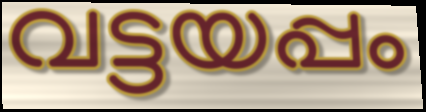
വട്ടയപ്പം